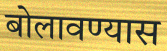
बोलावण्यास